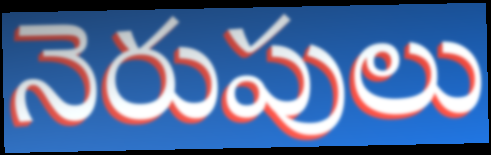
నెరుపులు